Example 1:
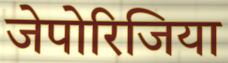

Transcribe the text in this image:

जेपोरिजिया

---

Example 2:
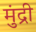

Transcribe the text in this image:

मुंद्री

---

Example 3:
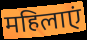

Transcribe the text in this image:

महिलाएं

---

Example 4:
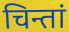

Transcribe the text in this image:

चिन्तां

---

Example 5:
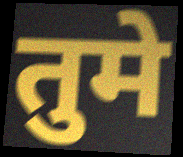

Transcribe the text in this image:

तुमे